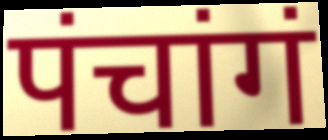
पंचांगं